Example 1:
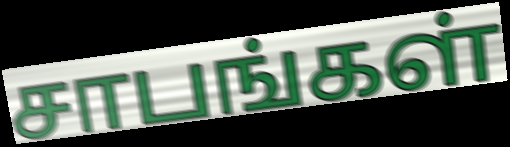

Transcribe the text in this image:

சாபங்கள்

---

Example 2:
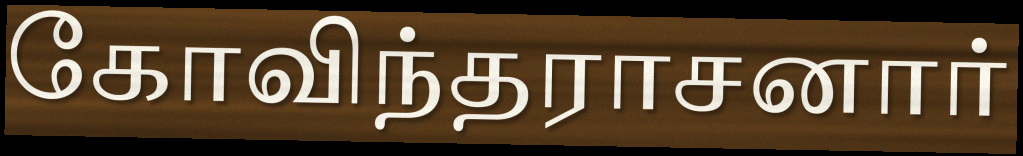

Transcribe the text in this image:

கோவிந்தராசனார்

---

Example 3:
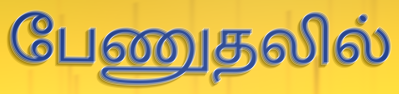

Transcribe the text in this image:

பேணுதலில்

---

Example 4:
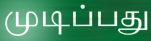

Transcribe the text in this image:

முடிப்பது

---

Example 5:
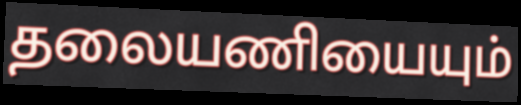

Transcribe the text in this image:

தலையணியையும்